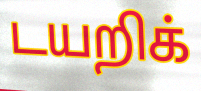
டயறிக்